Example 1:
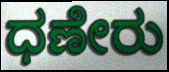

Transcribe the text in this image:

ಧಣೇರು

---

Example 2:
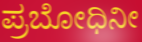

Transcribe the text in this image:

ಪ್ರಬೋಧಿನೀ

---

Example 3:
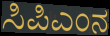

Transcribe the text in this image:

ಸಿಪಿಎಂನ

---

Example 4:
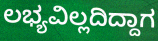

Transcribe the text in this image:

ಲಭ್ಯವಿಲ್ಲದಿದ್ದಾಗ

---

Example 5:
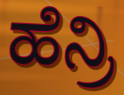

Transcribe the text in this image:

ಹೆನ್ರಿ